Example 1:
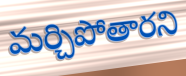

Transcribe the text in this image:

మర్చిపోతారని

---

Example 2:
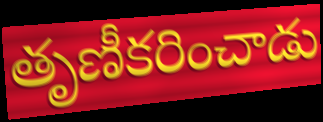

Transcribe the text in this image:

తృణీకరించాడు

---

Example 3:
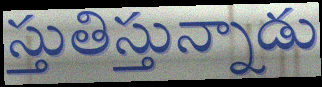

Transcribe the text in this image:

స్తుతిస్తున్నాడు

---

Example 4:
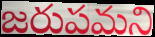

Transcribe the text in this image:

జరుపమని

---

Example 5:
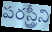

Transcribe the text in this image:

పరస్త్రీని